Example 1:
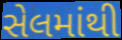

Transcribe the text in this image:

સેલમાંથી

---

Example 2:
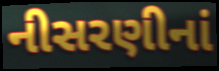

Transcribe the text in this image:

નીસરણીનાં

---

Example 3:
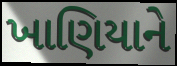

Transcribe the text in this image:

ખાણિયાને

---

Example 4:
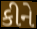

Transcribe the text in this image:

કીને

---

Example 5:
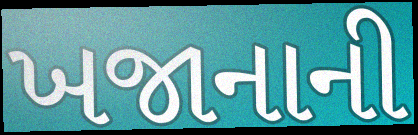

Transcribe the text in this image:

ખજાનાની